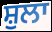
ਸ਼ੁਲਾ